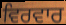
ਵਿਰਵਾਰ